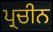
ਪ੍ਰਚੀਨ